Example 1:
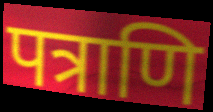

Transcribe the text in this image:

पत्राणि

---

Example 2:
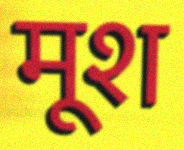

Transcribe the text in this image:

मूश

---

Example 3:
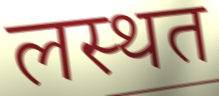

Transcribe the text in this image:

लस्थत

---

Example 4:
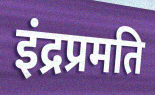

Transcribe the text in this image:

इंद्रप्रमति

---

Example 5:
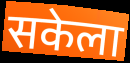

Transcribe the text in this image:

सकेला